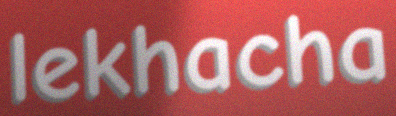
lekhacha